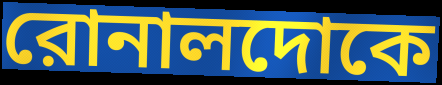
রোনালদোকে